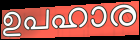
ഉപഹാര